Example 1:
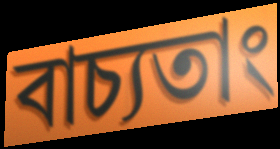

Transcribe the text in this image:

বাচ্যতাং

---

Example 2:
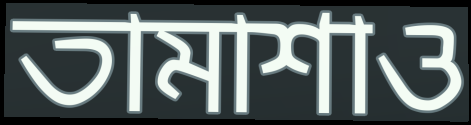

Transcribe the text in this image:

তামাশাও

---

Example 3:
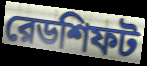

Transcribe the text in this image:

রেডশিফট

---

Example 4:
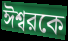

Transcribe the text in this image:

ঈশ্বরকে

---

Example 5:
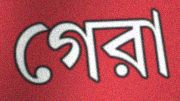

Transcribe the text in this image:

গেরা